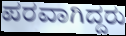
ಪರವಾಗಿದ್ದರು